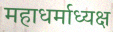
महाधर्माध्यक्ष